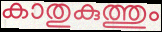
കാതുകുത്തും